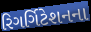
રિગર્ગિટેશનના